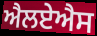
ਐਲਏਐਸ